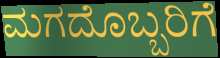
ಮಗದೊಬ್ಬರಿಗೆ